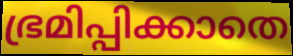
ഭ്രമിപ്പിക്കാതെ